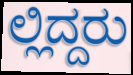
ಲ್ಲಿದ್ದರು